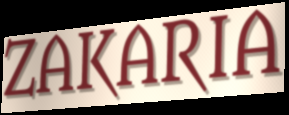
ZAKARIA